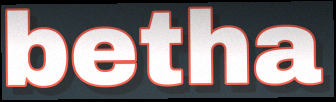
betha